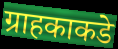
ग्राहकाकडे